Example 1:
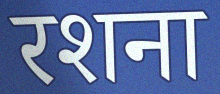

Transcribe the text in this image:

रशना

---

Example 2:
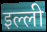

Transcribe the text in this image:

इल्ली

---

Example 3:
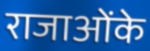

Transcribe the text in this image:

राजाओंके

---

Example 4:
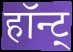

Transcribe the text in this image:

हॉन्ट्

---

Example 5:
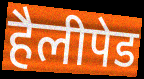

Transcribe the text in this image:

हैलीपेड